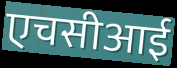
एचसीआई